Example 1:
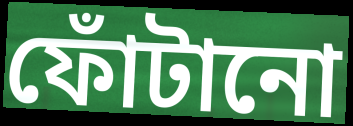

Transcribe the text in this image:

ফোঁটানো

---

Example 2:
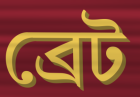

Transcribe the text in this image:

ব্রেট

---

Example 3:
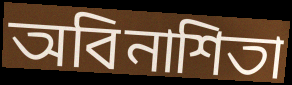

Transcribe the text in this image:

অবিনাশিতা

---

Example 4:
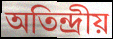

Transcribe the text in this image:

অতিন্দ্রীয়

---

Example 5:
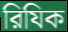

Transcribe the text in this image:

রিযিক